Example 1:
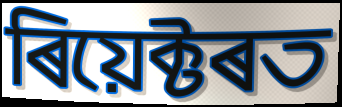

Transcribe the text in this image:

ৰিয়েক্টৰত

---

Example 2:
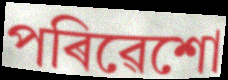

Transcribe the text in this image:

পৰিৱেশো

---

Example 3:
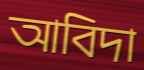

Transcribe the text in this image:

আবিদা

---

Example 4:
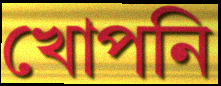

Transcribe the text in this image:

খোপনি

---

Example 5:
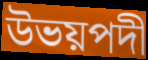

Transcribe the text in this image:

উভয়পদী